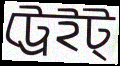
ট্রেইট্